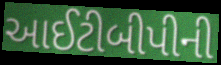
આઈટીબીપીની